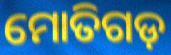
ମୋତିଗଡ଼